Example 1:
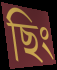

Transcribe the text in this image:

ছিং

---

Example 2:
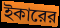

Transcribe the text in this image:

ইকারের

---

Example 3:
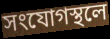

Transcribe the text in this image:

সংযোগস্থলে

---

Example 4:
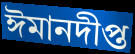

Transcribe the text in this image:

ঈমানদীপ্ত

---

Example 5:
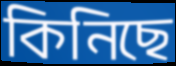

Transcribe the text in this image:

কিনিছে